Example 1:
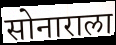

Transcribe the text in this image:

सोनाराला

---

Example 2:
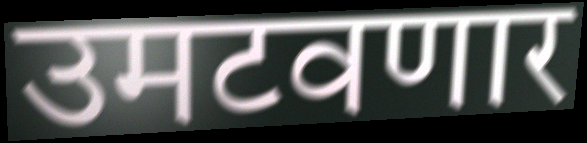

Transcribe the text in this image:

उमटवणार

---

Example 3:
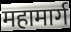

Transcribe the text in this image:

महामार्ग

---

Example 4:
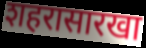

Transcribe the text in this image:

शहरासारखा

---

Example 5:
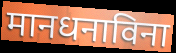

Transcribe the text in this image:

मानधनाविना